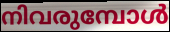
നിവരുമ്പോൾ